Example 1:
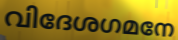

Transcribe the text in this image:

വിദേശഗമനേ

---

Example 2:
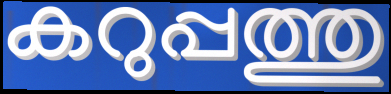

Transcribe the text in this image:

കറുപ്പത്തു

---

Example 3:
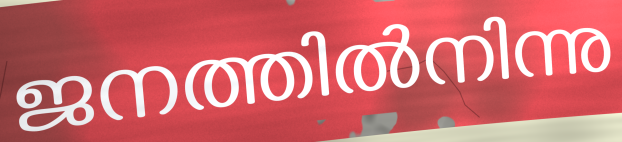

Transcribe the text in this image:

ജനത്തിൽനിന്നു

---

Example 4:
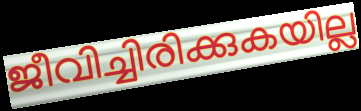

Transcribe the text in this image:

ജീവിച്ചിരിക്കുകയില്ല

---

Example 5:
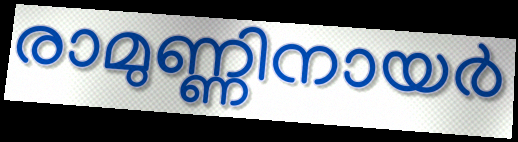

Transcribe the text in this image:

രാമുണ്ണിനായർ